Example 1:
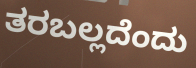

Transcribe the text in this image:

ತರಬಲ್ಲದೆಂದು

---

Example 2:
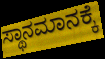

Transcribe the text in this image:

ಸ್ಥಾನಮಾನಕ್ಕೆ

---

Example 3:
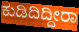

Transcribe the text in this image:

ಕುಡಿದಿದ್ದೀರಾ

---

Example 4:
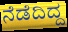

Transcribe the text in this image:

ನೆಡೆದಿದ್ದ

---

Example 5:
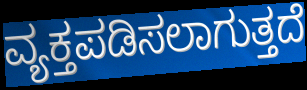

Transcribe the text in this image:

ವ್ಯಕ್ತಪಡಿಸಲಾಗುತ್ತದೆ